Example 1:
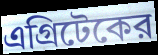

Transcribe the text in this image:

এগ্রিটেকের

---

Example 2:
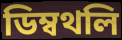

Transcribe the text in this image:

ডিম্বথলি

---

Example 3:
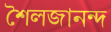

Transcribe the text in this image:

শৈলজানন্দ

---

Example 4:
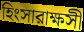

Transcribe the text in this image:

হিংসারাক্ষসী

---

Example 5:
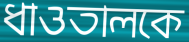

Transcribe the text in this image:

ধাওতালকে